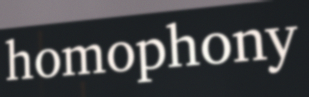
homophony